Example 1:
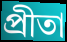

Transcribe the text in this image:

প্রীতা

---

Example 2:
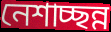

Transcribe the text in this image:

নেশাচ্ছন্ন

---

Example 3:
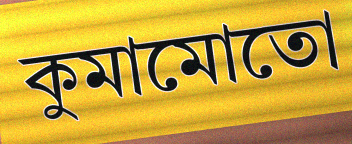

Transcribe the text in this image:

কুমামোতো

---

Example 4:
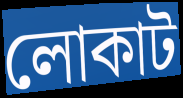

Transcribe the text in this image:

লোকাট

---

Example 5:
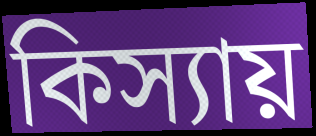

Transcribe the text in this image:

কিস্যায়